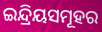
ଇନ୍ଦ୍ରିୟସମୂହର